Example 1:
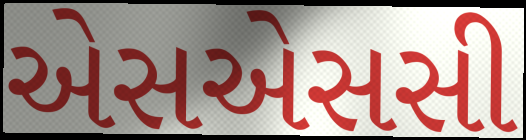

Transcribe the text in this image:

એસએસસી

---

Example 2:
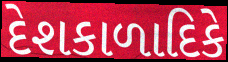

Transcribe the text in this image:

દેશકાળાદિકે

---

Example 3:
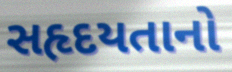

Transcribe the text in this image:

સહૃદયતાનો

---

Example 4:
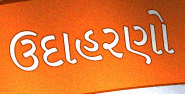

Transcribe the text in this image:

ઉદાહરણો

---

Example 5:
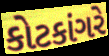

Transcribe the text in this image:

કોટકાંગરે